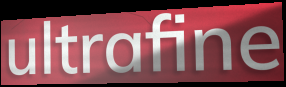
ultrafine